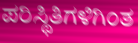
ಪರಿಸ್ಥಿತಿಗಳಿಗಿಂತ